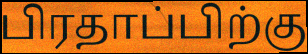
பிரதாப்பிற்கு